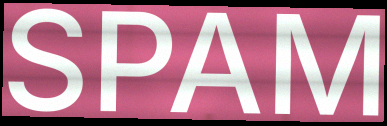
SPAM